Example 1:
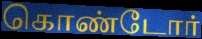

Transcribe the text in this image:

கொண்டோர்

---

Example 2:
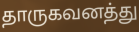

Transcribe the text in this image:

தாருகவனத்து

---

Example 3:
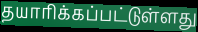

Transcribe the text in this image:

தயாரிக்கப்பட்டுள்ளது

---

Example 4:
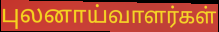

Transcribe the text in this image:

புலனாய்வாளர்கள்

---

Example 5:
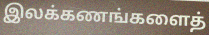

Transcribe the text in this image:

இலக்கணங்களைத்